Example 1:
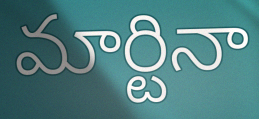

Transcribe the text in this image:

మార్టినా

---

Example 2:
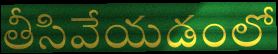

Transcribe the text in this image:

తీసివేయడంలో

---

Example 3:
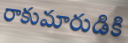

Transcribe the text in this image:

రాకుమారుడికి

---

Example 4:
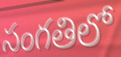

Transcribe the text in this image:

సంగతిలో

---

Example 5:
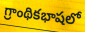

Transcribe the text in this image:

గ్రాంథికభాషలో